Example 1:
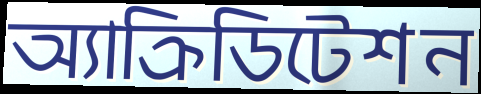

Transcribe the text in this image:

অ্যাক্রিডিটেশন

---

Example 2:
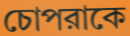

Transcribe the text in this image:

চোপরাকে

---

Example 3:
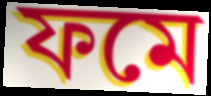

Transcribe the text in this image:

ফমে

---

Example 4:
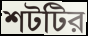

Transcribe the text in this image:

শটটির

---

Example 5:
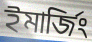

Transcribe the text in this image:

ইমার্জিং